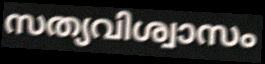
സത്യവിശ്വാസം